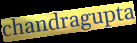
chandragupta